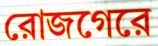
রোজগেরে